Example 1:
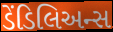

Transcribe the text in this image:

ડેંડિલિઅન્સ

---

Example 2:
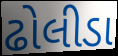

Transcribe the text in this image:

ઢોલીડા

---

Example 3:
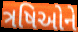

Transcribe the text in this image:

ત્રષિઓને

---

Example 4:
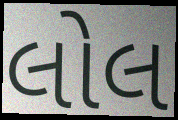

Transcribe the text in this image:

લોલ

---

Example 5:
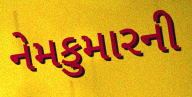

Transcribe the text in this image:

નેમકુમારની